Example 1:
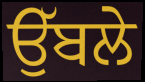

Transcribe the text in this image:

ਉੱਬਲੇ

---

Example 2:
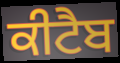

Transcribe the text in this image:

ਕੀਟੈਬ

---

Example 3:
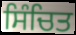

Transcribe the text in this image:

ਸਿੰਚਿਤ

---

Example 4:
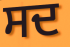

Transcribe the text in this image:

ਸਦ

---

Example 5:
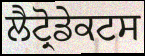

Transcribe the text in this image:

ਲੈਟ੍ਰੋਡੇਕਟਸ